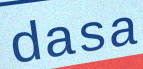
dasa